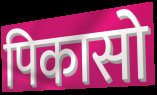
पिकासो